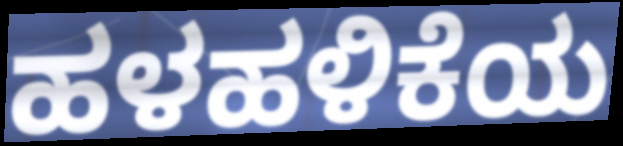
ಹಳಹಳಿಕೆಯ